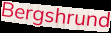
Bergshrund